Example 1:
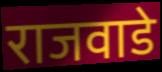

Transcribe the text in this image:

राजवाडे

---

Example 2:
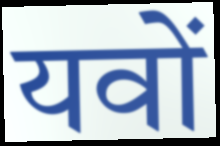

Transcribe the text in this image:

यवों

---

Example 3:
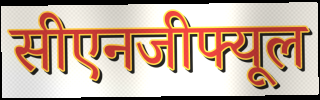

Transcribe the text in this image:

सीएनजीफ्यूल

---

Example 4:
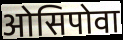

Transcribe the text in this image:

ओसिपोवा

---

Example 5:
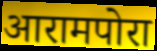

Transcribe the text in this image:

आरामपोरा